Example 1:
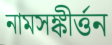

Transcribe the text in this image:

নামসঙ্কীর্ত্তন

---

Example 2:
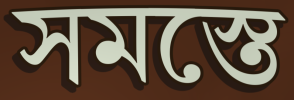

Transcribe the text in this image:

সমস্তে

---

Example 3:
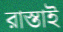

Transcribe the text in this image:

রাস্তাই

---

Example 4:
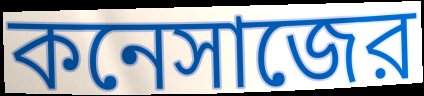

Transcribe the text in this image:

কনেসাজের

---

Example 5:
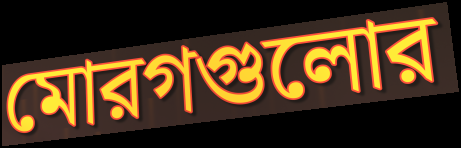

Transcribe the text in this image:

মোরগগুলোর